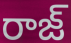
రాజ్